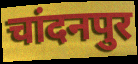
चांदनपुर